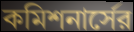
কমিশনার্সের